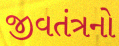
જીવતંત્રનો